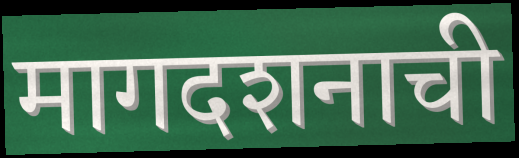
मागदशनाची